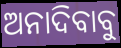
ଅନାଦିବାବୁ